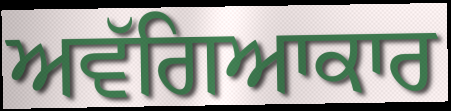
ਅਵੱਗਿਆਕਾਰ